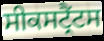
ਸੀਕਸਟ੍ਰੈਂਟਸ